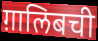
ग़ालिबची